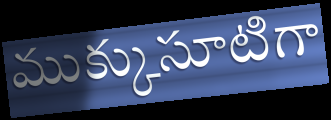
ముక్కుసూటిగా